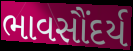
ભાવસૌંદર્ય